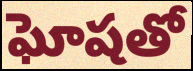
ఘోషతో